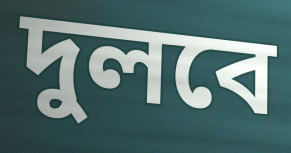
দুলবে